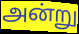
அன்று